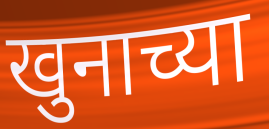
खुनाच्या